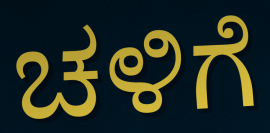
ಚಳಿಗೆ